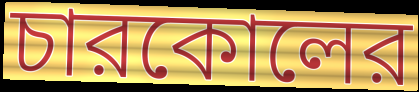
চারকোলের